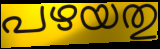
പഴയതു